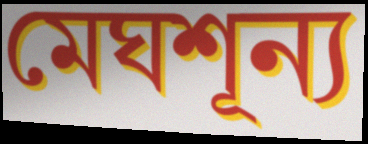
মেঘশূন্য